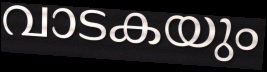
വാടകയും